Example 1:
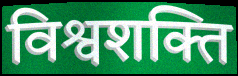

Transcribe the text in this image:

विश्वशक्ति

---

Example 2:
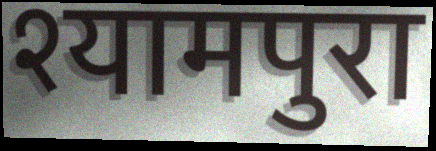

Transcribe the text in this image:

श्यामपुरा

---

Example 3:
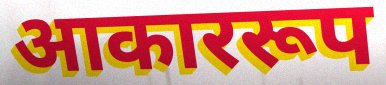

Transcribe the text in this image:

आकाररूप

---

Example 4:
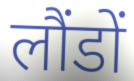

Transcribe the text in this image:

लौंडों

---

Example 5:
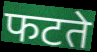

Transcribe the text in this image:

फटते